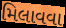
મિલાવવા